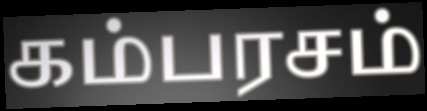
கம்பரசம்